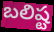
బలిష్ట